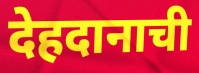
देहदानाची